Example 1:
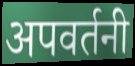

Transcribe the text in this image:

अपवर्तनी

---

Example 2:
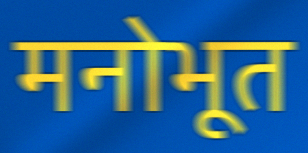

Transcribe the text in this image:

मनोभूत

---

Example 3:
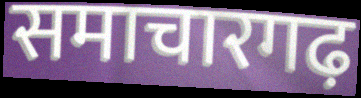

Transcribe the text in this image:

समाचारगढ़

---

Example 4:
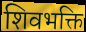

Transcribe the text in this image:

शिवभक्ति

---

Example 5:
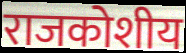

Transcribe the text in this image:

राजकोशीय